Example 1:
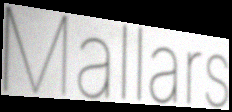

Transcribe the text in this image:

Mallars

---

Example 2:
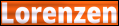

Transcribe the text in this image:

Lorenzen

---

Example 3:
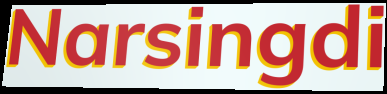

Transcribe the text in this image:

Narsingdi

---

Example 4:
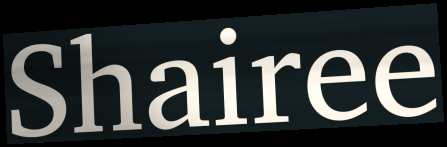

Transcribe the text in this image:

Shairee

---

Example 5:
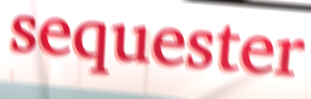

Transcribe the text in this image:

sequester